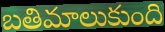
బతిమాలుకుంది